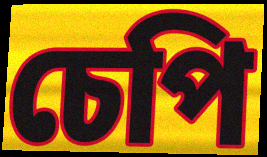
চেপি